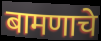
बामणाचे